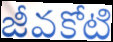
జీవకోటి